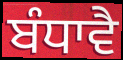
ਬੰਧਾਵੈ